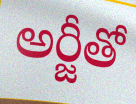
అర్జీతో